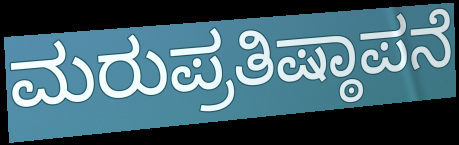
ಮರುಪ್ರತಿಷ್ಠಾಪನೆ